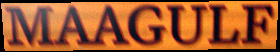
MAAGULF